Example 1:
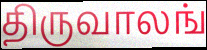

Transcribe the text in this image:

திருவாலங்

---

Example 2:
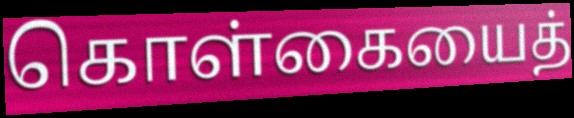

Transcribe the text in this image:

கொள்கையைத்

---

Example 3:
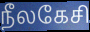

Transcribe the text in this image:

நீலகேசி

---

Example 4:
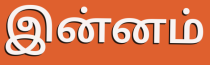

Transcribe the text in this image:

இன்னம்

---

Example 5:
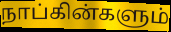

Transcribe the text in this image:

நாப்கின்களும்